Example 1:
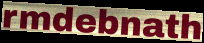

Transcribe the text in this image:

rmdebnath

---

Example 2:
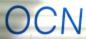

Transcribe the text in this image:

OCN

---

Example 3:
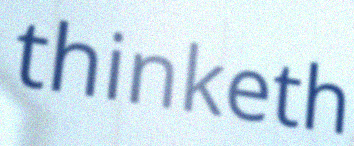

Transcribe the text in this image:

thinketh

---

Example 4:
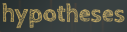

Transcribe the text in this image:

hypotheses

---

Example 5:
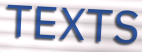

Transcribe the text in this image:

TEXTS